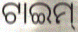
ଟାଇମ୍